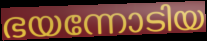
ഭയന്നോടിയ